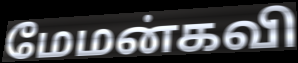
மேமன்கவி